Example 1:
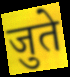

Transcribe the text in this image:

जुते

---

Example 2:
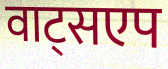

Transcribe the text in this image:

वाट्सएप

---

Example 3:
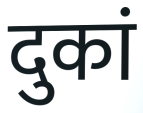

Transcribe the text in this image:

दुकां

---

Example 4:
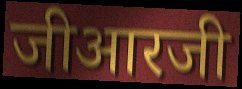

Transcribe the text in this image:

जीआरजी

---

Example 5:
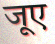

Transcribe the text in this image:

जूए